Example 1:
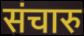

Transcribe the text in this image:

संचारु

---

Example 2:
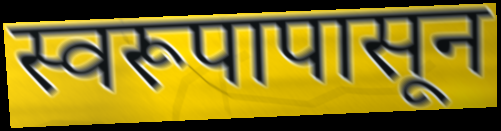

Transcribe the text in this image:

स्वरूपापासून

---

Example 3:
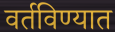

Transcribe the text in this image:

वर्तविण्यात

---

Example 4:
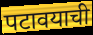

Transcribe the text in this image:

पटावयाची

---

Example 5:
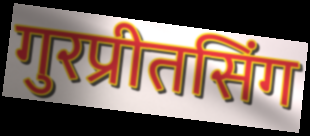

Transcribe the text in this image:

गुरप्रीतसिंग